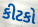
કીટકો